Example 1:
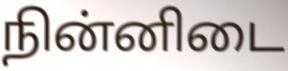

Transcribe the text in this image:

நின்னிடை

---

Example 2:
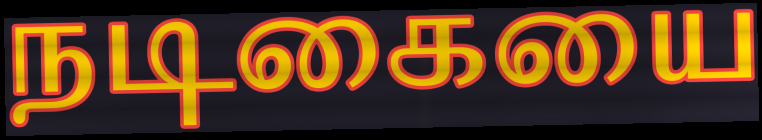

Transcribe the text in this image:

நடிகையை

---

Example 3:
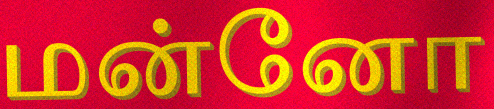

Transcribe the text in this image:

மன்னோ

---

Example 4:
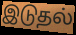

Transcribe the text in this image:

இடுதல்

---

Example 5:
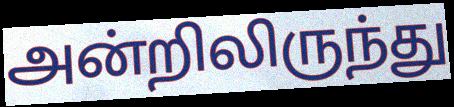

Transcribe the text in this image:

அன்றிலிருந்து